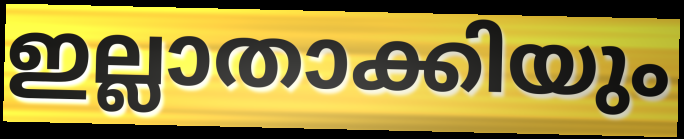
ഇല്ലാതാക്കിയും